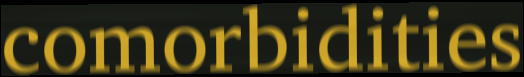
comorbidities